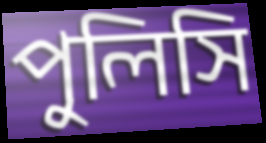
পুলিসি